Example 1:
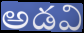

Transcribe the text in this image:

అడవి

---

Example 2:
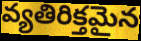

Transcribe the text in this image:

వ్యతిరిక్తమైన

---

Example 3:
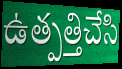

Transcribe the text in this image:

ఉత్పత్తిచేసి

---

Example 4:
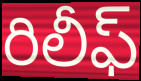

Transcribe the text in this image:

రిలీఫ్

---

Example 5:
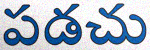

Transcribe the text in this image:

పడచు